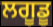
ਲਗੂਡੂ